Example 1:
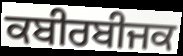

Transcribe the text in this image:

ਕਬੀਰਬੀਜਕ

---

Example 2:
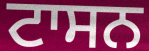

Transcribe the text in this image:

ਟਾਸਨ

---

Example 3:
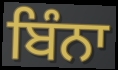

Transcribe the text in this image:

ਬਿੰਨਾ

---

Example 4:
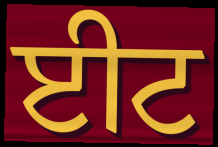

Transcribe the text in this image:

ਈਟ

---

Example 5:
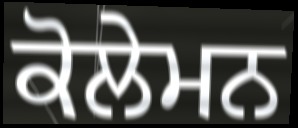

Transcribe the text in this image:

ਕੋਲੇਮਨ